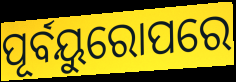
ପୂର୍ବୟୁରୋପରେ